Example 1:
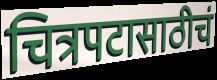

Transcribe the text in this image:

चित्रपटासाठीचं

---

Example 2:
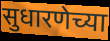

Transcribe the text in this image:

सुधारणेच्या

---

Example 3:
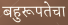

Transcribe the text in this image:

बहुरूपतेचा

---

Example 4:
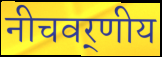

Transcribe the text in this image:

नीचवर्णीय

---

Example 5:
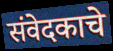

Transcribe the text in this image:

संवेदकाचे